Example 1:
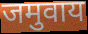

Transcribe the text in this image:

जमुवाय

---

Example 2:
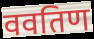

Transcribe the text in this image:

ववतिण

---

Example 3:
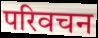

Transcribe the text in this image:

परिवचन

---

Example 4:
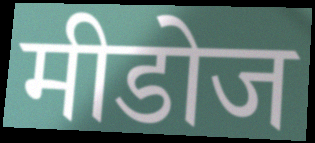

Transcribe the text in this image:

मीडोज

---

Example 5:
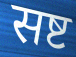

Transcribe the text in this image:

सष्ट